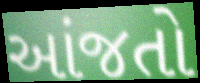
આંજતો